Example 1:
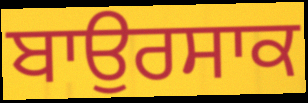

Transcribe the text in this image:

ਬਾਉਰਸਾਕ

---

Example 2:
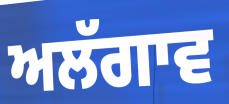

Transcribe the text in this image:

ਅਲੱਗਾਵ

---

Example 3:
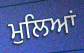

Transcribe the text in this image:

ਮੁਲਿਆਂ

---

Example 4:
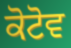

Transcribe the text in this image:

ਕੋਟੋਵ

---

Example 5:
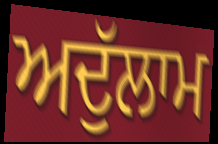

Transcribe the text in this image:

ਅਦੁੱਲਾਮ